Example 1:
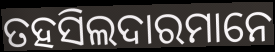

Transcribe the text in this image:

ତହସିଲଦାରମାନେ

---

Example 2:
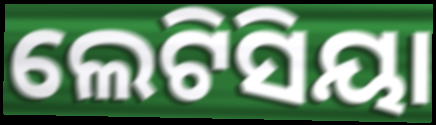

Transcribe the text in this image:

ଲେଟିସିୟା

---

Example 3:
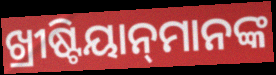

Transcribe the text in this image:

ଖ୍ରୀଷ୍ଟିୟାନ୍‌ମାନଙ୍କ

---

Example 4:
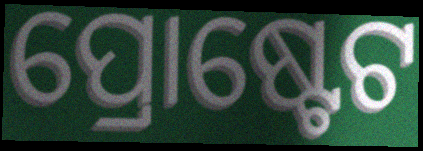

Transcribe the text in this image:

ପ୍ରୋଷ୍ଟେଟ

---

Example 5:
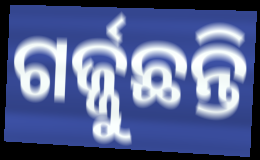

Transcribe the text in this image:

ଗର୍ଜ୍ଜୁଛନ୍ତି